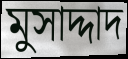
মুসাদ্দাদ